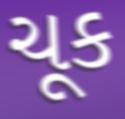
ચૂક